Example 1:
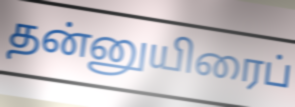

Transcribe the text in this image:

தன்னுயிரைப்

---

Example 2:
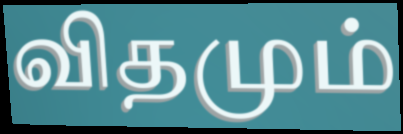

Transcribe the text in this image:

விதமும்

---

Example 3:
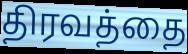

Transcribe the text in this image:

திரவத்தை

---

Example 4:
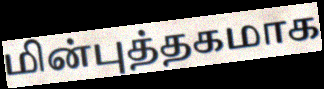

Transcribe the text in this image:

மின்புத்தகமாக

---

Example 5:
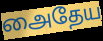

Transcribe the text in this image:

அைதேய